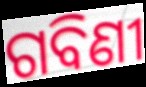
ଗବିଣୀ